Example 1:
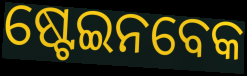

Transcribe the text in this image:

ଷ୍ଟେଇନବେକ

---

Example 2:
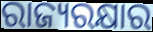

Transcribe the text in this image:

ରାଜ୍ୟରକ୍ଷାର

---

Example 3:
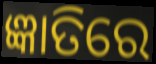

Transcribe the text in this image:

ଜ୍ଞାତିରେ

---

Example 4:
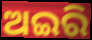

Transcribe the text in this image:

ଅଇରି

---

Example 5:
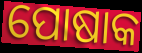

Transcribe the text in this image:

ପୋଷାକ